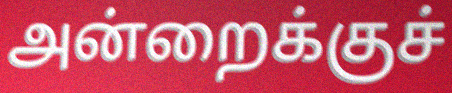
அன்றைக்குச்